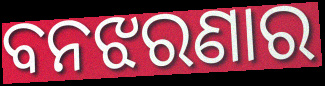
ବନଝରଣାର